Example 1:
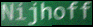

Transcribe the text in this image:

Nijhoff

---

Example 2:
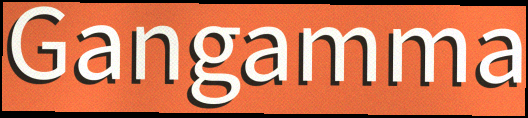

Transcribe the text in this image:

Gangamma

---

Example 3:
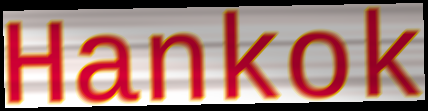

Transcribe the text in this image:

Hankok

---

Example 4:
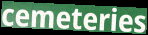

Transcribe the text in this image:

cemeteries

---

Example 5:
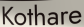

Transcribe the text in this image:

Kothare